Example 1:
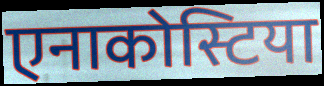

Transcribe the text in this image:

एनाकोस्टिया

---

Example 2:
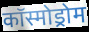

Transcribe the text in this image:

कॉस्मोड्रोम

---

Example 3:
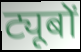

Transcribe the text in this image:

ट्यूबों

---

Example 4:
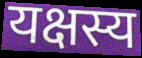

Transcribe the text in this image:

यक्षस्य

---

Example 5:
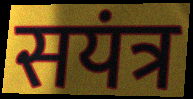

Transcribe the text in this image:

सयंत्र